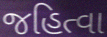
જહિત્વા